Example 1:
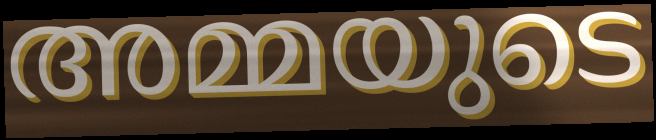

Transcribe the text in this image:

അമ്മയുടെ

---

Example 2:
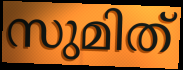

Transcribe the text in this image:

സുമിത്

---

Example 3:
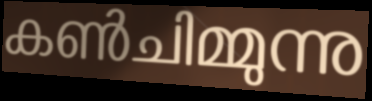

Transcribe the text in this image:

കൺചിമ്മുന്നു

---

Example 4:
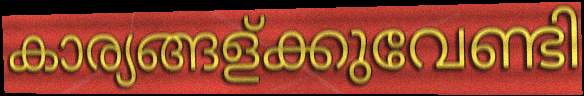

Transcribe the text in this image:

കാര്യങ്ങള്ക്കുവേണ്ടി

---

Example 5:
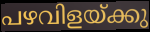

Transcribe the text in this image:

പഴവിളയ്ക്കു